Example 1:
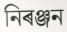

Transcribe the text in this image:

নিৰঞ্জন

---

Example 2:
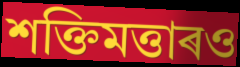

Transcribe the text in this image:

শক্তিমত্তাৰও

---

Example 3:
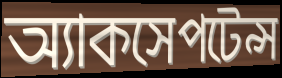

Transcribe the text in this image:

অ্যাকসেপটেন্স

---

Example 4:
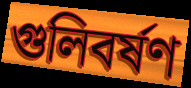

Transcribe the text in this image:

গুলিবৰ্ষণ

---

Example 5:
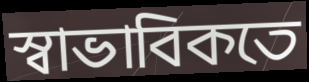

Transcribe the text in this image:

স্বাভাবিকতে